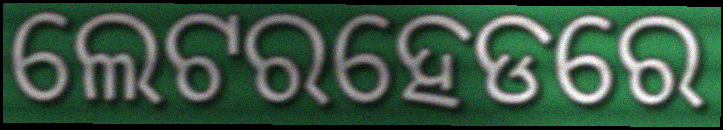
ଲେଟରହେଡରେ